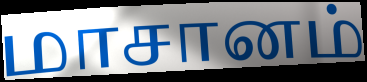
மாசானம்